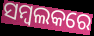
ସମ୍ବଲକରେ